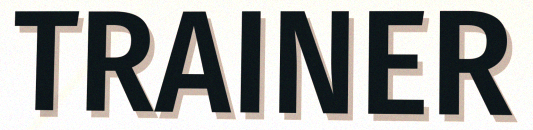
TRAINER